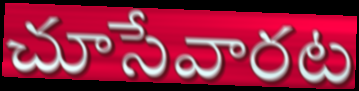
చూసేవారట